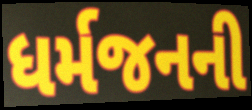
ધર્મજનની